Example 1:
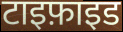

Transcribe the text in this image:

टाइफ़ाइड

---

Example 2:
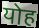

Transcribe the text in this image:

योह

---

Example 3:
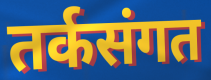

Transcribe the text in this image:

तर्कसंगत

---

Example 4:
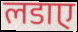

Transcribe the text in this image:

लडाए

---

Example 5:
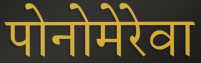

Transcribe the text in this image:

पोनोमेरेवा